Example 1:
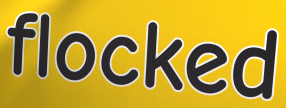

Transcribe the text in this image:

flocked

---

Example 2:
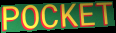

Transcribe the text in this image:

POCKET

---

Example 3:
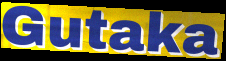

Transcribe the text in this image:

Gutaka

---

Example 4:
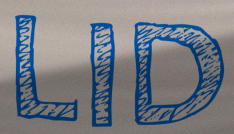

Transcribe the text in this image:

LID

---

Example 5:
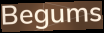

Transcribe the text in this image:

Begums